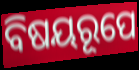
ବିଷୟରୂପେ